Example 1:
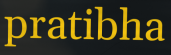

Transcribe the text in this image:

pratibha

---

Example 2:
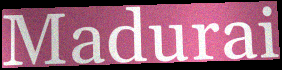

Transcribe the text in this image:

Madurai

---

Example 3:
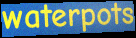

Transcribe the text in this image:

waterpots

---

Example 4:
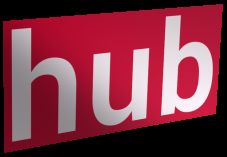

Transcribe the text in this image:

hub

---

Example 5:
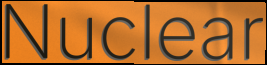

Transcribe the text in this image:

Nuclear